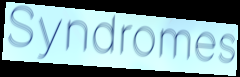
Syndromes